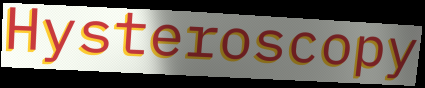
Hysteroscopy